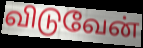
விடுவேன்